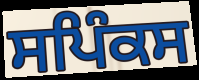
ਸਪਿੰਕਸ